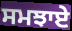
ਸਮਝਾਏ